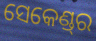
ସେକେଣ୍ଡ୍‌ର